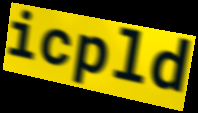
icpld